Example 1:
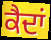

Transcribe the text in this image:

ਕੈਦਾਂ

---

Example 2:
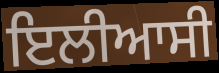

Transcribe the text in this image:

ਇਲੀਆਸੀ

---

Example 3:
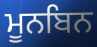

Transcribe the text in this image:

ਮੂਨਬਿਨ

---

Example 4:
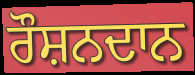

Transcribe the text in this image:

ਰੌਸ਼ਨਦਾਨ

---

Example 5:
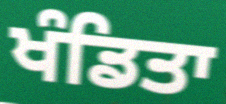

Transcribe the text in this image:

ਖੰਡਿਤਾ